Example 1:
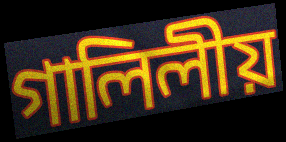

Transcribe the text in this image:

গালিলীয়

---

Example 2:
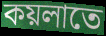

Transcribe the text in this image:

কয়লাতে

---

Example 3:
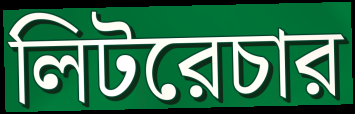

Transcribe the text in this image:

লিটরেচার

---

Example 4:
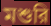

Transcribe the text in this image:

মশুরি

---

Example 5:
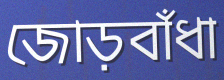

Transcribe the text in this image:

জোড়বাঁধা